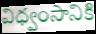
విధ్వంసానికి